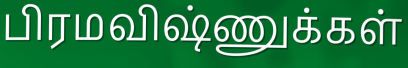
பிரமவிஷ்ணுக்கள்